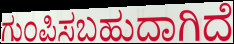
ಗುಂಪಿಸಬಹುದಾಗಿದೆ